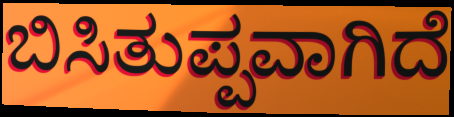
ಬಿಸಿತುಪ್ಪವಾಗಿದೆ